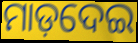
ମାଡ଼ଦେଇ